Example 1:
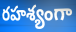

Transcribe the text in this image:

రహశ్యంగా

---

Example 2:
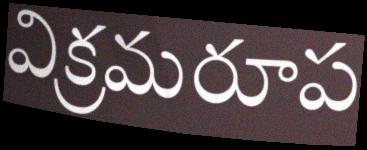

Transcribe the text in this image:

విక్రమరూప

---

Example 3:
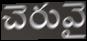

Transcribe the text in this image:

చెరువై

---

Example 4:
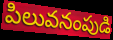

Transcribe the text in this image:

పిలువనంపుడి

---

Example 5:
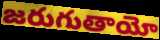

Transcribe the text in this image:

జరుగుతాయో